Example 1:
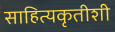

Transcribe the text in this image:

साहित्यकृतीशी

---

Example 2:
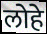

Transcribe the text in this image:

लोहे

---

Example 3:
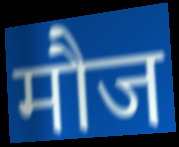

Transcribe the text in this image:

मौज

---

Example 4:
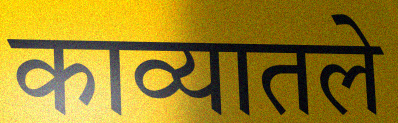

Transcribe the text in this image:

काव्यातले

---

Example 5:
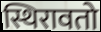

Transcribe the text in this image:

स्थिरावतो